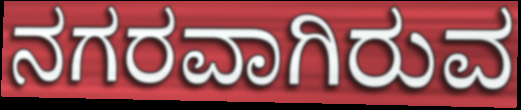
ನಗರವಾಗಿರುವ